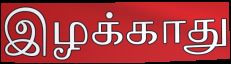
இழக்காது